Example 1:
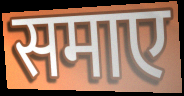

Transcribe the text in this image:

समाए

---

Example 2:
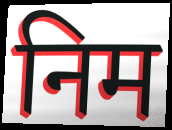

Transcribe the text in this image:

निम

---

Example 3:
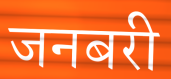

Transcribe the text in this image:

जनबरी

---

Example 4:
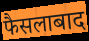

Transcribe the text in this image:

फैसलाबाद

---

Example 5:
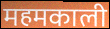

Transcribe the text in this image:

महमकाली